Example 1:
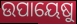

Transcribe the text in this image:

ଉପାୟେଷୁ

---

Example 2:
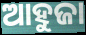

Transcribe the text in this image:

ଆହୁଜା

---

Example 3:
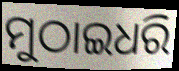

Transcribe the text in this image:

ମୁଠାଇଧରି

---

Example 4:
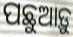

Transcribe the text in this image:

ପଛୁଆଡ଼ୁ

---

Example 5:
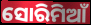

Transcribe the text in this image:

ସୋରିମିଆଁ